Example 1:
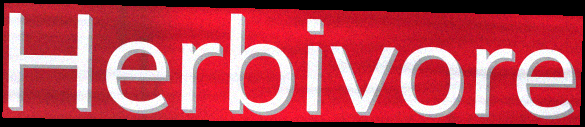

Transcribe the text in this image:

Herbivore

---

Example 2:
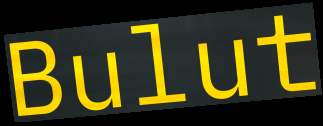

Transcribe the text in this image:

Bulut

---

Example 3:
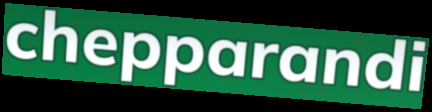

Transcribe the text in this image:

chepparandi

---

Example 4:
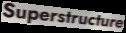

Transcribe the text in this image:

Superstructure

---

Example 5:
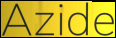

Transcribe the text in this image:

Azide